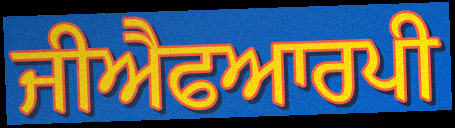
ਜੀਐਫਆਰਪੀ